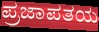
ಪ್ರಜಾಪತಯ